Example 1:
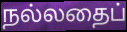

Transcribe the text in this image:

நல்லதைப்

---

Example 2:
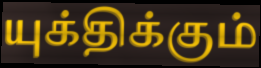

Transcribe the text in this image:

யுக்திக்கும்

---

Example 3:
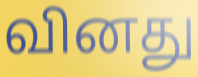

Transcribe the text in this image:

வினது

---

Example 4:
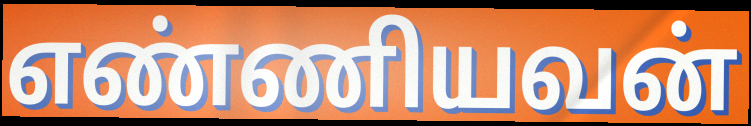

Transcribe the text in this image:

எண்ணியவன்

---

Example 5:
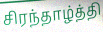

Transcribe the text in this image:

சிரந்தாழ்த்தி